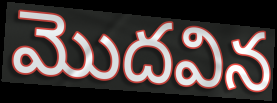
మొదవిన